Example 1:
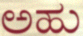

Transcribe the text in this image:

ಅಹು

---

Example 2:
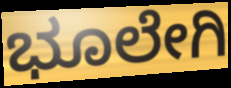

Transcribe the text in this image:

ಭೂಲೇಗಿ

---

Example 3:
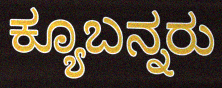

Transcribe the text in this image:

ಕ್ಯೂಬನ್ನರು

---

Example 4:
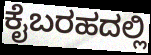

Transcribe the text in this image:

ಕೈಬರಹದಲ್ಲಿ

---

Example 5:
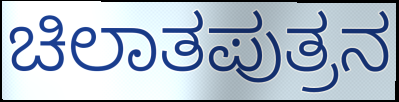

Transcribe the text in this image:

ಚಿಲಾತಪುತ್ರನ